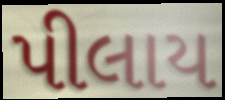
પીલાય